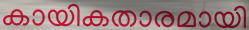
കായികതാരമായി